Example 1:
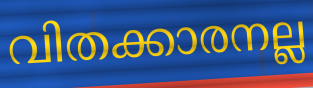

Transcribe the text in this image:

വിതക്കാരനല്ല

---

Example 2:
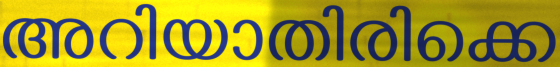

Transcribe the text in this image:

അറിയാതിരിക്കെ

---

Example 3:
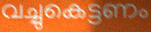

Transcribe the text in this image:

വച്ചുകെട്ടണം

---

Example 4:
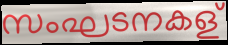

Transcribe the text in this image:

സംഘടനകള്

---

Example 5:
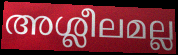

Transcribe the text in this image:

അശ്ലീലമല്ല